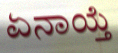
ಏನಾಯ್ತೆ